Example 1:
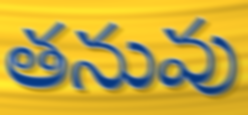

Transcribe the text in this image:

తనువు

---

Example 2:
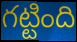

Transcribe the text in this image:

గట్టింది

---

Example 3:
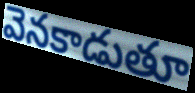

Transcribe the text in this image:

వెనకాడుతూ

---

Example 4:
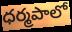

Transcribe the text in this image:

ధర్మపాలో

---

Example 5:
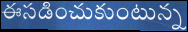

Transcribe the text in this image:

ఈసడించుకుంటున్న